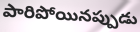
పారిపోయినప్పుడు